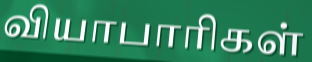
வியாபாரிகள்